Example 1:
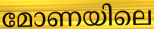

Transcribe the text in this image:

മോണയിലെ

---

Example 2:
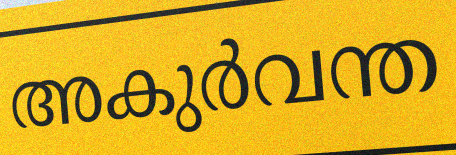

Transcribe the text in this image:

അകുർവന്ത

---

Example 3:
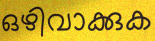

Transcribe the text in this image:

ഒഴിവാക്കുക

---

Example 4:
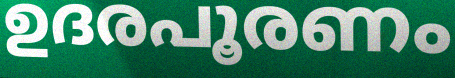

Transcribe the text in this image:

ഉദരപൂരണം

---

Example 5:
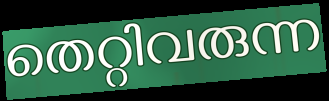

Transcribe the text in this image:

തെറ്റിവരുന്ന